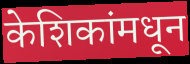
केशिकांमधून